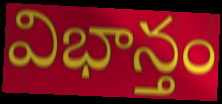
విభాన్తం